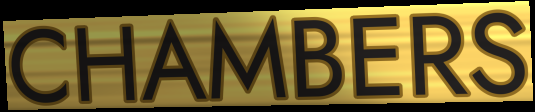
CHAMBERS